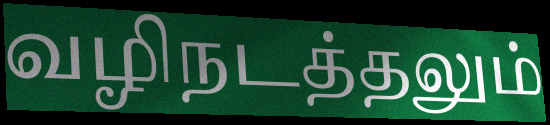
வழிநடத்தலும்